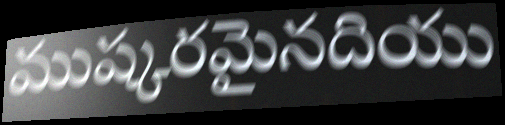
ముష్కరమైనదియు